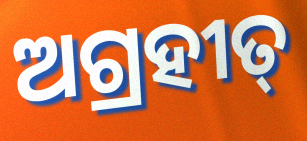
ଅଗ୍ରହୀତ୍